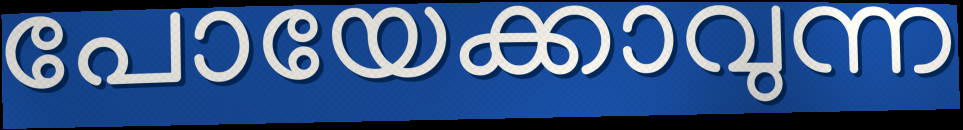
പോയേക്കാവുന്ന